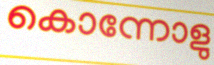
കൊന്നോളു